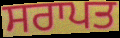
ਸਰਾਪਤ